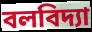
বলবিদ্যা